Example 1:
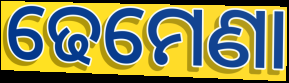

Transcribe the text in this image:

ଢେମେଣା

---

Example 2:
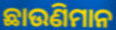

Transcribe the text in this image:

ଛାଉଣିମାନ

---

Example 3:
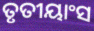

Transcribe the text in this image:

ତୃତୀୟାଂସ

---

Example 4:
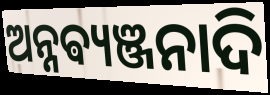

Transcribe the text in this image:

ଅନ୍ନଵ୍ୟଞ୍ଜନାଦି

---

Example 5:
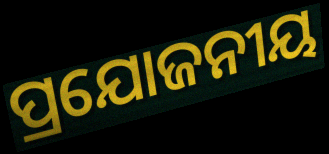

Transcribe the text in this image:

ପ୍ରଯୋଜନୀୟ